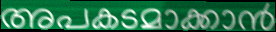
അപകടമാക്കാൻ